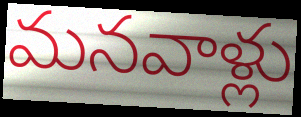
మనవాళ్లు